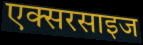
एक्सरसाइज